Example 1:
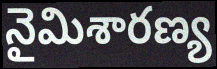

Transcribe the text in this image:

నైమిశారణ్య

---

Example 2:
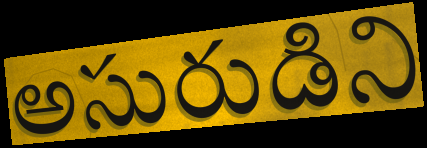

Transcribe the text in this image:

అసురుడిని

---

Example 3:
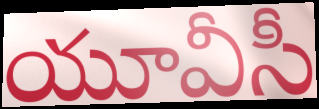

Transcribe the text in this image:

యూవీసీ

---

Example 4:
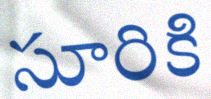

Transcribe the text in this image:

సూరికి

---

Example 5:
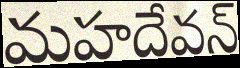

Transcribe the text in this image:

మహదేవన్